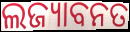
ଲଜ୍ୟାବନତ